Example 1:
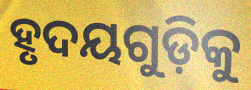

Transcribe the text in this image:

ହୃଦୟଗୁଡ଼ିକୁ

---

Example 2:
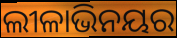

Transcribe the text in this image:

ଲୀଳାଭିନୟର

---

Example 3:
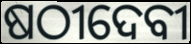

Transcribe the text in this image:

ଷଠୀଦେବୀ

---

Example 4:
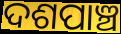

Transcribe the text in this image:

ଦଶପାଞ୍ଚ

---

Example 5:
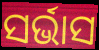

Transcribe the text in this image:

ସର୍ଭାସ